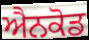
ਐਨਕੋਡ